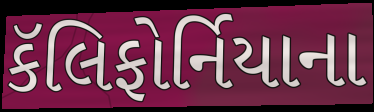
કૅલિફોર્નિયાના